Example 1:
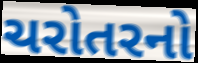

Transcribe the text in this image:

ચરોતરનો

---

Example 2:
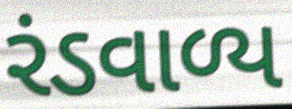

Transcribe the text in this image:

રંડવાળ્ય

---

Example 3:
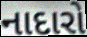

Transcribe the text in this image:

નાદારો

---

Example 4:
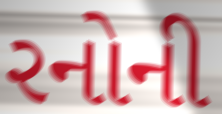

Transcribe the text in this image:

રનોની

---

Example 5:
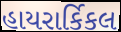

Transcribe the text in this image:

હાયરાર્કિકલ